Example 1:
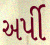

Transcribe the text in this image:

અર્પી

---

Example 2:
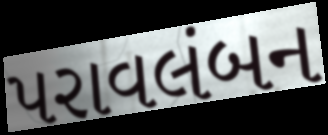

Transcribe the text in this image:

પરાવલંબન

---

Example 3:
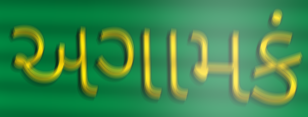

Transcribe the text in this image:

અગામકં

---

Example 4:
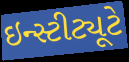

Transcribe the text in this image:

ઇન્સ્ટીટ્યૂટે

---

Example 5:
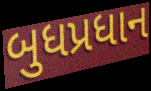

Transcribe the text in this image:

બુધપ્રધાન